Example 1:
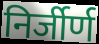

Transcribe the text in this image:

निर्जीर्ण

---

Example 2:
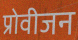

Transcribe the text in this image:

प्रोवीजन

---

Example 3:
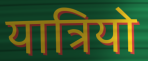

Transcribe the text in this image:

यात्रियो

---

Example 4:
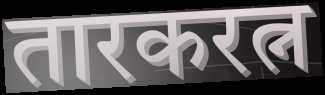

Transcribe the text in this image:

तारकरत्न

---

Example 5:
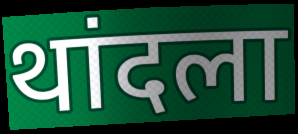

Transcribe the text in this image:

थांदला